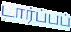
டார்ப்பப்